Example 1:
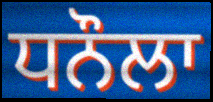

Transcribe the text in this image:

ਧਨੌਲਾ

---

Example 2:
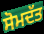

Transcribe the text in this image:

ਸੋਮਦੱਤ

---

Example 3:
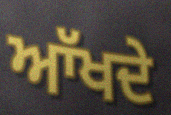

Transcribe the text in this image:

ਆੱਖਦੇ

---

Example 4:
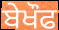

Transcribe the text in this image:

ਬੇਖੌਫ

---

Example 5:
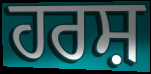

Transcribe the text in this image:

ਹਰਸ਼